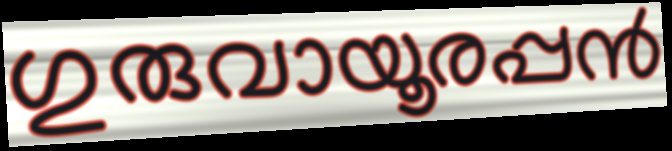
ഗുരുവായൂരപ്പൻ